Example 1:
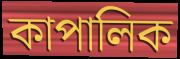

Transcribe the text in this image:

কাপালিক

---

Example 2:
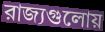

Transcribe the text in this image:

রাজ্যগুলোয়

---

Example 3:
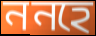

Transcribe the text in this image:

ননহে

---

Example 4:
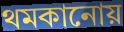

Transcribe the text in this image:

থমকানোয়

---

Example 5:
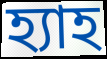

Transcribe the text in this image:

হ্যাহ